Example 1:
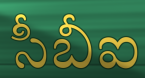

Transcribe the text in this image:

సీబీఐ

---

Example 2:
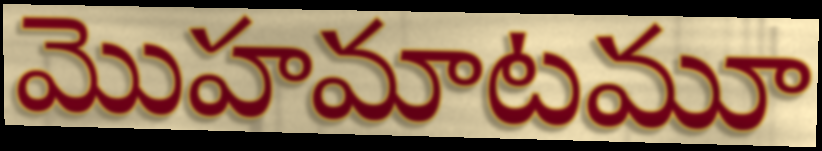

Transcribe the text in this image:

మొహమాటమూ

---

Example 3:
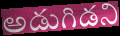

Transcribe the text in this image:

అడుగిడని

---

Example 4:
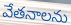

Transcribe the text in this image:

వేతనాలను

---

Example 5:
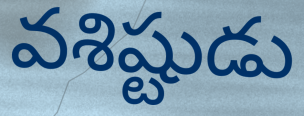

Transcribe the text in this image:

వశిష్టుడు